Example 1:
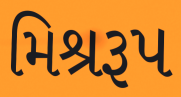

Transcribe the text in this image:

મિશ્રરૂપ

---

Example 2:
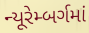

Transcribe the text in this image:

ન્યૂરેમ્બર્ગમાં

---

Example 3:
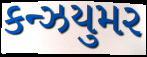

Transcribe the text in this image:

કન્ઝયુમર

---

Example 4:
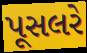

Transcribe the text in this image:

પૂસલરે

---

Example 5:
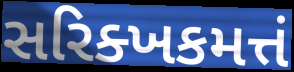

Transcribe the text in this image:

સરિક્ખકમત્તં